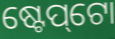
ଷ୍ଟେପ୍‌ଟୋ